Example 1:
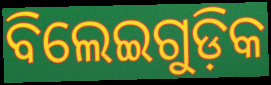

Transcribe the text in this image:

ବିଲେଇଗୁଡ଼ିକ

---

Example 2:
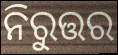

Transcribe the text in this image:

ନିରୁତ୍ତର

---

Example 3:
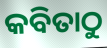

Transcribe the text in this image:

କବିତାଠୁ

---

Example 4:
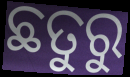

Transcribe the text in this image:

ଛତୁରୁ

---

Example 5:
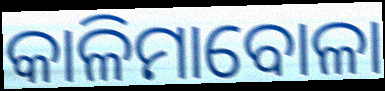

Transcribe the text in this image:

କାଳିମାବୋଳା